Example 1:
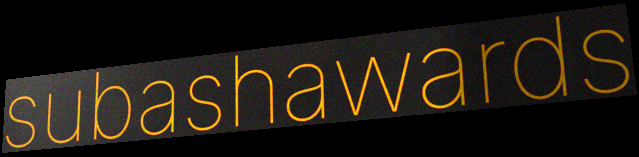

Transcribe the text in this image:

subashawards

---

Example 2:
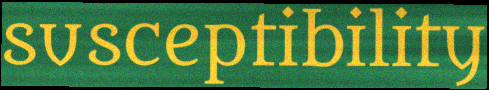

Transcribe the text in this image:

susceptibility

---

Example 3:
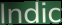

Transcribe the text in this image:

Indic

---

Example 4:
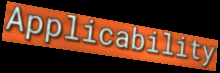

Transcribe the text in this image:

Applicability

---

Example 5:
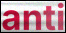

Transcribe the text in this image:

anti